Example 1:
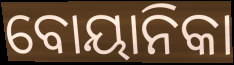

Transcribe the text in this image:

ବୋୟାନିକା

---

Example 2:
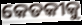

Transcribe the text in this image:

କେତକୀକୁ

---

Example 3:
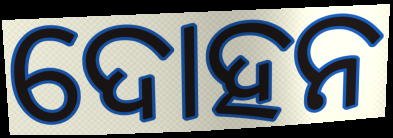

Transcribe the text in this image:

ଦୋହନ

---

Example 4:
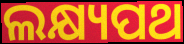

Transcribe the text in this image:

ଲକ୍ଷ୍ୟପଥ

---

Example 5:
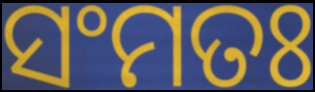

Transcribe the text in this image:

ସଂମତଃ